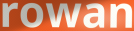
rowan